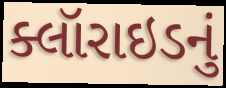
ક્લૉરાઇડનું